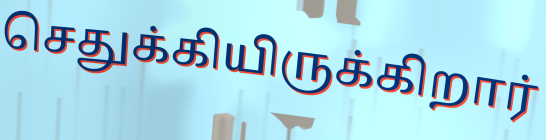
செதுக்கியிருக்கிறார்